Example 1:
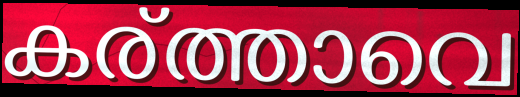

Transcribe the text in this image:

കര്ത്താവെ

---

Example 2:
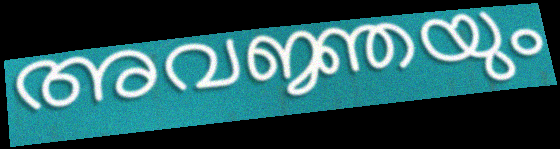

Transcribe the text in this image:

അവജ്ഞയും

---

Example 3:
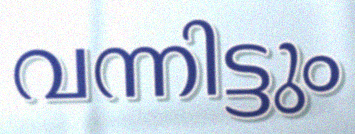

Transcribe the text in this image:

വന്നിട്ടും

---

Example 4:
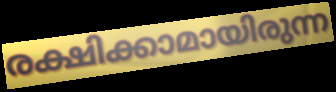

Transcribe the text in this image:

രക്ഷിക്കാമായിരുന്ന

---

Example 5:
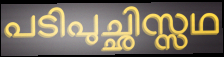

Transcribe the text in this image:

പടിപുച്ഛിസ്സഥ